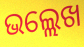
ଭଲ୍ଲେଖ